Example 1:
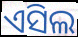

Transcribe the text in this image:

ଏସିଲ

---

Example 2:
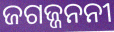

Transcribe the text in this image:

ଜଗଜ୍ଜନନୀ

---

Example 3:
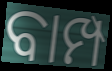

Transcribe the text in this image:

ବାମ୍ପ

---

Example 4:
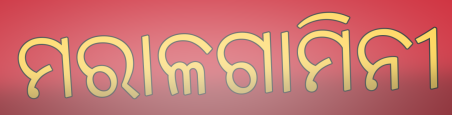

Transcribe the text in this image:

ମରାଳଗାମିନୀ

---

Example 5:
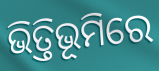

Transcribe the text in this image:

ଭିତ୍ତିଭୂମିରେ